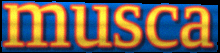
musca